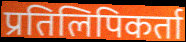
प्रतिलिपिकर्ता